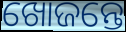
ଖୋଜନ୍ତେ